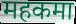
महकमा